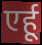
एर्हू